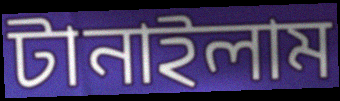
টানাইলাম